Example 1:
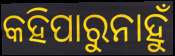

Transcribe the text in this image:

କହିପାରୁନାହୁଁ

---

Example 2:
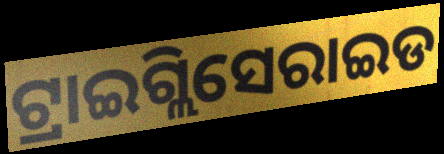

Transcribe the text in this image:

ଟ୍ରାଇଗ୍ଲିସେରାଇଡ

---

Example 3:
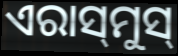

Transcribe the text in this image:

ଏରାସ୍‍ମୁସ୍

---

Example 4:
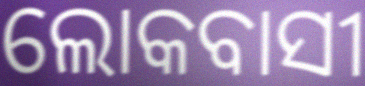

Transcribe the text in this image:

ଲୋକବାସୀ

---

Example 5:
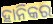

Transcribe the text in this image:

ହାନିକର